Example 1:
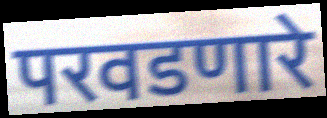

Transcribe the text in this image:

परवडणारे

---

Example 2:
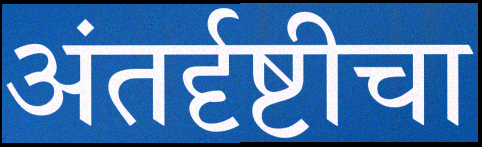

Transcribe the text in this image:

अंतर्दृष्टीचा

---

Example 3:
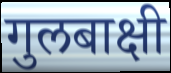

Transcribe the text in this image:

गुलबाक्षी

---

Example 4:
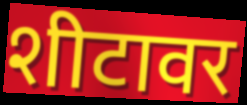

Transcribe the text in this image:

शीटावर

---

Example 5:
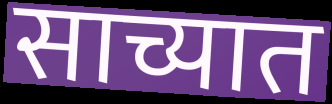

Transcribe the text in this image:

साच्यात